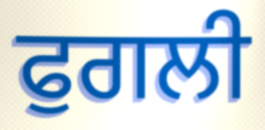
ਫੁਗਲੀ